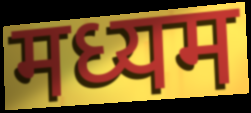
मध्यम